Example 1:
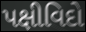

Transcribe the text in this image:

પક્ષીવિદો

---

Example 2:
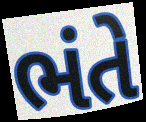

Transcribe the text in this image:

ભંતે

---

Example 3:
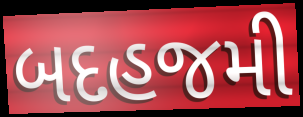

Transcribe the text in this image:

બદહજમી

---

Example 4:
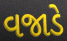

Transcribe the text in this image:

વજાડે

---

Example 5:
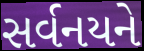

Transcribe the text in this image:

સર્વનયને